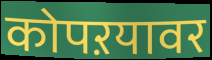
कोपऱयावर